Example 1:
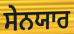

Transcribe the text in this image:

ਸੇਨਯਾਰ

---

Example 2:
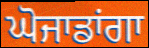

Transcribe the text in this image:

ਘੋਜਾਡਾਂਗਾ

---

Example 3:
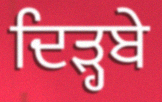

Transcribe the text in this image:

ਦਿੜ੍ਹਬੇ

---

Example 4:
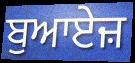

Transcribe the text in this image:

ਬੁਆਏਜ਼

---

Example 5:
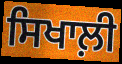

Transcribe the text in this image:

ਸਿਖਾਲ਼ੀ